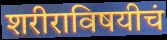
शरीराविषयीचं